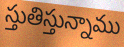
స్తుతిస్తున్నాము